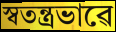
স্বতন্ত্ৰভাৱে